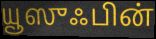
யூஸுஃபின்